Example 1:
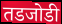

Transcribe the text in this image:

तडजोडी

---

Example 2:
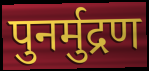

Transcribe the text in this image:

पुनर्मुद्रण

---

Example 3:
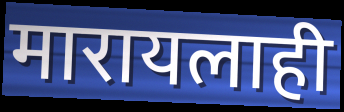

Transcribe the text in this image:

मारायलाही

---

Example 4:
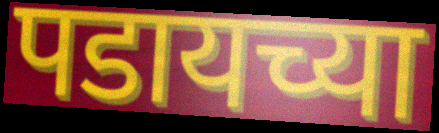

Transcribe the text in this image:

पडायच्या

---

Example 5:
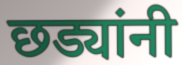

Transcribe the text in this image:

छड्यांनी